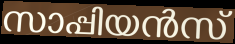
സാപ്പിയൻസ്